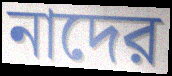
নাদের